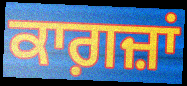
ਕਾਗ਼ਜ਼ਾਂ